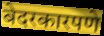
बेदरकारपणे